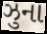
ઝુના